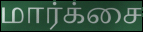
மார்க்சை